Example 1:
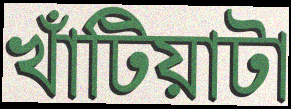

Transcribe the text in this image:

খাঁটিয়াটা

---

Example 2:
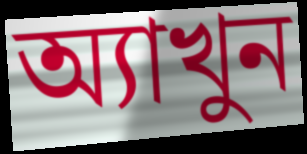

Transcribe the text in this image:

অ্যাখুন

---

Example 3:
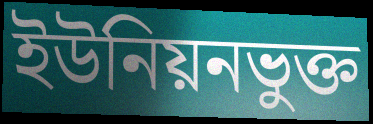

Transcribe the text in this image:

ইউনিয়নভুক্ত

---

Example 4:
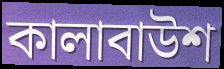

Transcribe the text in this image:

কালাবাউশ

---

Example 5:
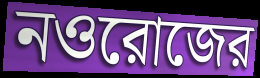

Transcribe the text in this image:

নওরোজের